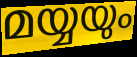
മയ്യയും